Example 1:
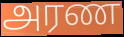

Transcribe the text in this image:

அரண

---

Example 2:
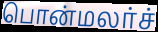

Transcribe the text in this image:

பொன்மலர்ச்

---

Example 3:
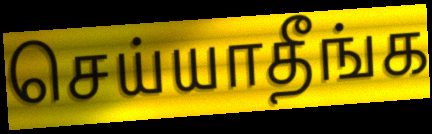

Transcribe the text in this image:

செய்யாதீங்க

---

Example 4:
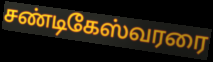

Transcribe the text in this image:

சண்டிகேஸ்வரரை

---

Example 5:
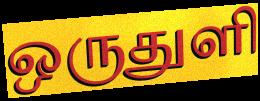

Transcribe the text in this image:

ஒருதுளி